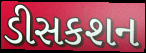
ડીસકશન